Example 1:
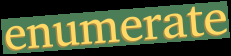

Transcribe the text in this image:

enumerate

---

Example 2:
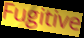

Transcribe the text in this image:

Fugitive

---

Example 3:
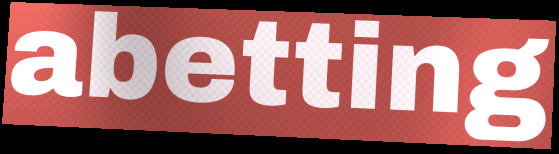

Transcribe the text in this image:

abetting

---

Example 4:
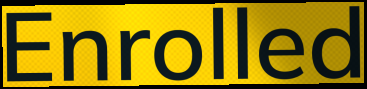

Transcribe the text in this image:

Enrolled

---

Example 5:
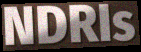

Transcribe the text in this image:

NDRIs